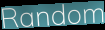
Random